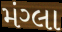
મંગ્લા